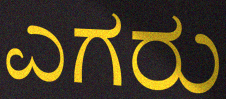
ಎಗರು